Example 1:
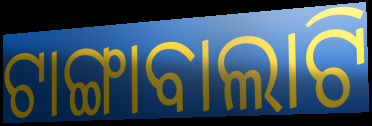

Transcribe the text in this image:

ଟାଙ୍ଗାବାଲାଟି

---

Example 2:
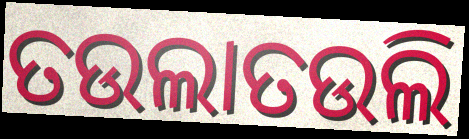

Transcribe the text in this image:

ତଉଲାତଉଲି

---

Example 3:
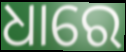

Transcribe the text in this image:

ଧାରେ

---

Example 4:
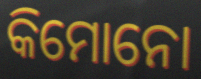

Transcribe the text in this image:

କିମୋନୋ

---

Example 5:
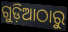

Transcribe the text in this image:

ଗୁଡ଼ିଆଠାରୁ